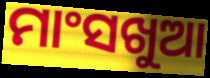
ମାଂସଖୁଆ